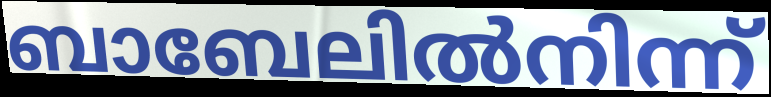
ബാബേലിൽനിന്ന്